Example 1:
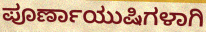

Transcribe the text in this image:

ಪೂರ್ಣಾಯುಷಿಗಳಾಗಿ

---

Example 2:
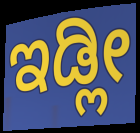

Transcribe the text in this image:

ಇಡ್ಲೀ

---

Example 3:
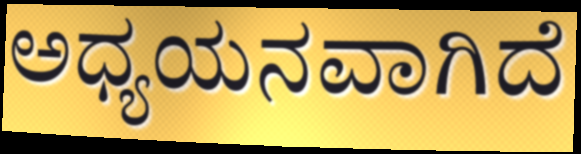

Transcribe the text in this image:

ಅಧ್ಯಯನವಾಗಿದೆ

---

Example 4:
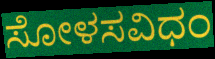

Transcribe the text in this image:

ಸೋಳಸವಿಧಂ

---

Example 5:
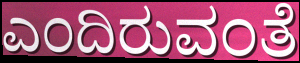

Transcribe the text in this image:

ಎಂದಿರುವಂತೆ